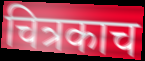
चित्रकाच